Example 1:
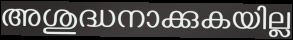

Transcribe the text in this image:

അശുദ്ധനാക്കുകയില്ല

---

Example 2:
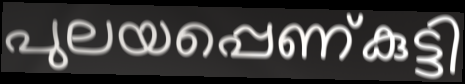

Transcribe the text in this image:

പുലയപ്പെണ്കുട്ടി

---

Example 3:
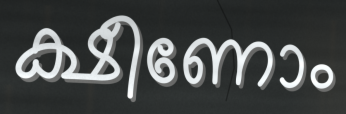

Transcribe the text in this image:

ക്ഷീണോം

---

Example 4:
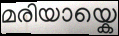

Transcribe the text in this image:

മരിയായ്കെ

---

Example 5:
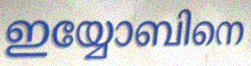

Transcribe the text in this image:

ഇയ്യോബിനെ